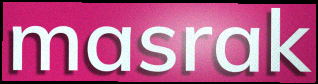
masrak